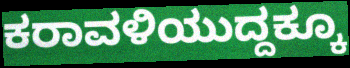
ಕರಾವಳಿಯುದ್ದಕ್ಕೂ